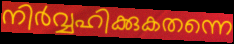
നിർവ്വഹിക്കുകതന്നെ